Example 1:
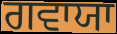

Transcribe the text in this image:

ਗਵਾਯਾ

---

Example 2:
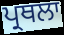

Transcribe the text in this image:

ਪ੍ਰਥਲਾ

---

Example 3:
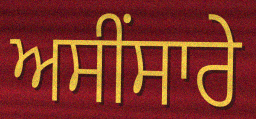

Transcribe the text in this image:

ਅਸੀਂਸਾਰੇ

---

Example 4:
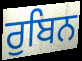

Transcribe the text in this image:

ਰੁਬਿਨ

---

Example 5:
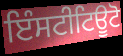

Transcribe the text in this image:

ਇੰਸਟੀਟਿਊਟੋ